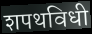
शपथविधी